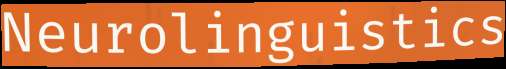
Neurolinguistics